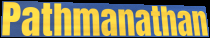
Pathmanathan